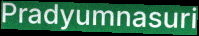
Pradyumnasuri